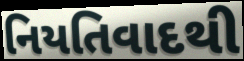
નિયતિવાદથી